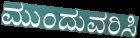
ಮುಂದುವರಿಸಿ